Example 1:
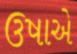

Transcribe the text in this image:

ઉષાએ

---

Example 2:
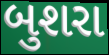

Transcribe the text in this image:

બુશરા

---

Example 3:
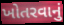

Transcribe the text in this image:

ખોતરવાનું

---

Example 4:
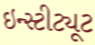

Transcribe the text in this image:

ઇન્સ્ટીટ્યૂટ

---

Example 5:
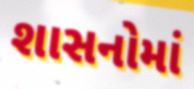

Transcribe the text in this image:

શાસનોમાં